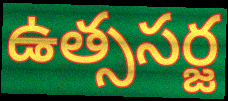
ఉత్ససర్జ